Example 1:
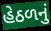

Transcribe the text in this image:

હેઠળનું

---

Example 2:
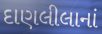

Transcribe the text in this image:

દાણલીલાનાં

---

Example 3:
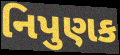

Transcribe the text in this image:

નિપુણક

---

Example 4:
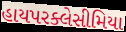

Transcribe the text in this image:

હાયપરક્લેસીમિયા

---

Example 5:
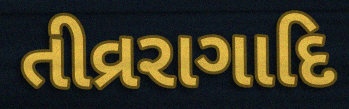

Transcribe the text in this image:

તીવ્રરાગાદિ